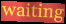
waiting